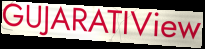
GUJARATIView